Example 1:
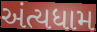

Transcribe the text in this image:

અંત્યધામ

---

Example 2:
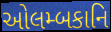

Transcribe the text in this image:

ઓલમ્બકાનિ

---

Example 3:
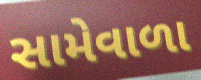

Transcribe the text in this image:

સામેવાળા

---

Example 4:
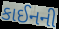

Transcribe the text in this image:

કાઈનની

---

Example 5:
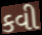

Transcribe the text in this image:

કવી